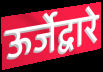
ऊर्जेद्वारे